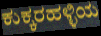
ಕುಕ್ಕರಹಳ್ಳಿಯ